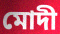
মোদী